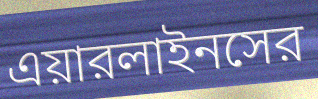
এয়ারলাইনসের